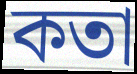
কতা